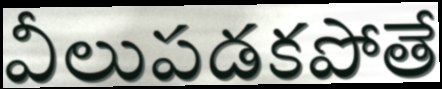
వీలుపడకపోతే